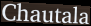
Chautala